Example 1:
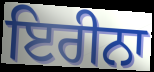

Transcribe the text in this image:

ਇਰੀਨਾ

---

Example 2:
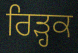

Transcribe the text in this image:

ਰਿੜ੍ਹਕ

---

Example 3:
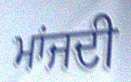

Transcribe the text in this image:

ਮਾਂਜਦੀ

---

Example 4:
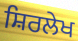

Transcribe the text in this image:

ਸ਼ਿਰਲੇਖ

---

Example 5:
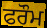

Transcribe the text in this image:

ਫਰੌਮ